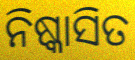
ନିଷ୍କାସିତ